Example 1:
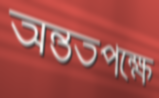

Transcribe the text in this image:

অন্ততপক্ষে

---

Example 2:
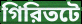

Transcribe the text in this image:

গিরিতটে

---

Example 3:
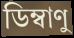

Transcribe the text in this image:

ডিম্বাণু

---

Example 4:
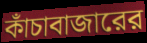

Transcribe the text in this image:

কাঁচাবাজারের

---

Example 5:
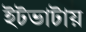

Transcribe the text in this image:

ইটভাটায়